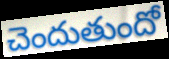
చెందుతుందో